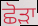
ਛੋੜਾ